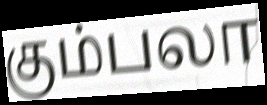
கும்பலா